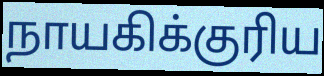
நாயகிக்குரிய